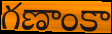
గణాంకా